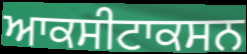
ਆਕਸੀਟਾਕਸਨ